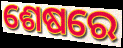
ଶେଷରେ